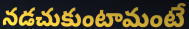
నడచుకుంటామంటే